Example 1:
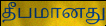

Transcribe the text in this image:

தீபமானது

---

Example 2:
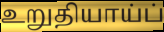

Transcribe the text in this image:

உறுதியாய்ப்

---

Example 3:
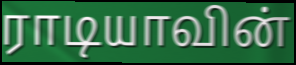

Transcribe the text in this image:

ராடியாவின்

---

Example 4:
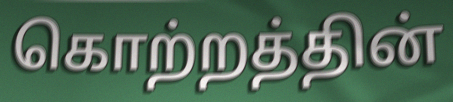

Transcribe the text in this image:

கொற்றத்தின்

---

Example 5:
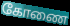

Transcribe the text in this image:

கோணை